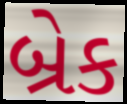
બ્રેક